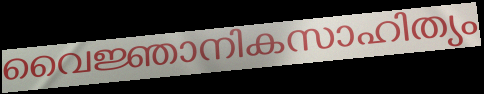
വൈജ്ഞാനികസാഹിത്യം